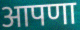
आपणा